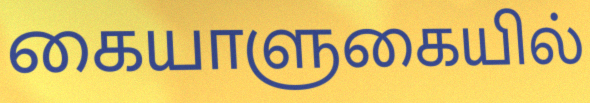
கையாளுகையில்